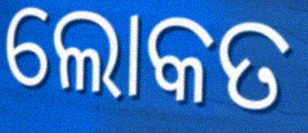
ଲୋକତ